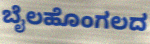
ಬೈಲಹೊಂಗಲದ